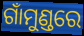
ଗାଁମୁଣ୍ଡରେ